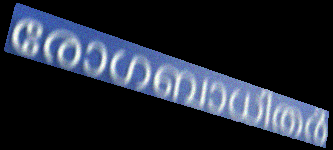
രോഗബാധിതർ